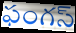
ఫంగస్